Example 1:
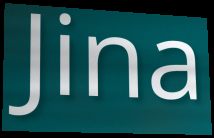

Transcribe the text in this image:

Jina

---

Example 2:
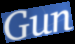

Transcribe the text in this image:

Gun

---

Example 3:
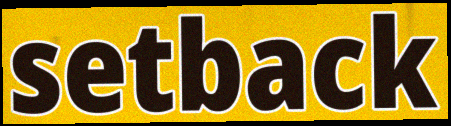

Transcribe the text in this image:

setback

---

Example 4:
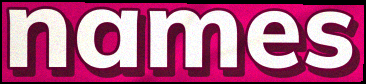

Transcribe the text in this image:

names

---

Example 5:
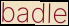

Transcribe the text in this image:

badle